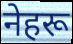
नेहरू